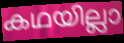
കഥയില്ലാ